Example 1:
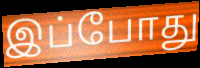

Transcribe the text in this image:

இப்போது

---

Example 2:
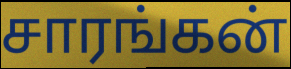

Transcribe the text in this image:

சாரங்கன்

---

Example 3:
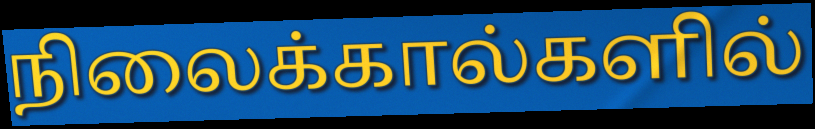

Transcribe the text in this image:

நிலைக்கால்களில்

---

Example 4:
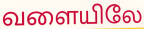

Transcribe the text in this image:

வளையிலே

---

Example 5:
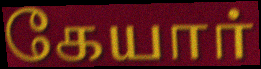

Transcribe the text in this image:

கேயார்